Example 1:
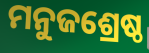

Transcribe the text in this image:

ମନୁଜଶ୍ରେଷ୍ଠ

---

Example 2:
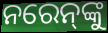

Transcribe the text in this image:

ନରେନ୍‌ଙ୍କୁ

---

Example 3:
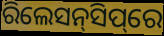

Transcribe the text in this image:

ରିଲେସନ୍‌ସିପ୍‌ରେ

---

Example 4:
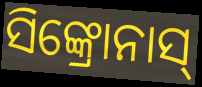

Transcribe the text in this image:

ସିଙ୍କ୍ରୋନାସ୍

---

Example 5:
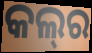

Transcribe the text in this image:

କଲ୍‌ର